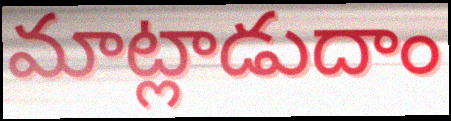
మాట్లాడుదాం